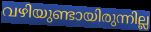
വഴിയുണ്ടായിരുന്നില്ല